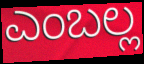
ಎಂಬಲ್ಲ